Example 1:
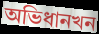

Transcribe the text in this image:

অভিধানখন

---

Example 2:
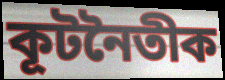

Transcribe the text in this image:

কূটনৈতীক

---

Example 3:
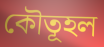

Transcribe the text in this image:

কৌতূহল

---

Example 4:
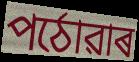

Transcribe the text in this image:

পঠোৱাৰ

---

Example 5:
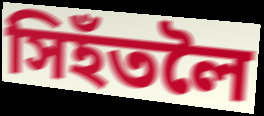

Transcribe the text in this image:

সিহঁতলৈ